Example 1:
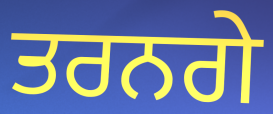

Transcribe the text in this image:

ਤਰਨਗੇ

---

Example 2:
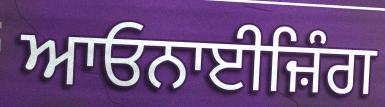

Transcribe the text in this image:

ਆਓਨਾਈਜ਼ਿੰਗ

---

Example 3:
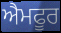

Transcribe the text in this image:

ਐਮਫੂਰ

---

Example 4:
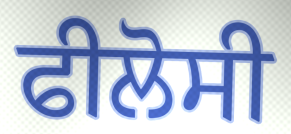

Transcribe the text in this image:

ਫੀਲੋਸੀ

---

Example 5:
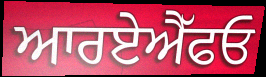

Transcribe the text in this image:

ਆਰਏਐੱਫਓ